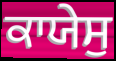
ਕਾਯੇਸੁ